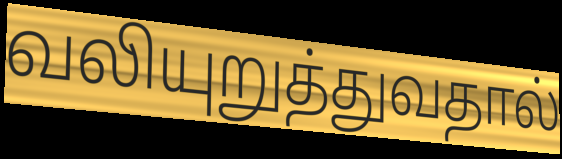
வலியுறுத்துவதால்